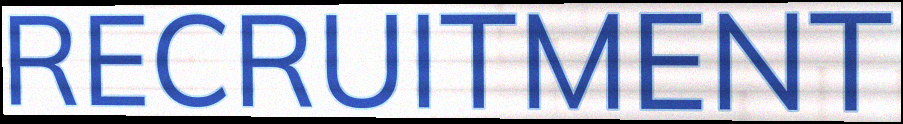
RECRUITMENT